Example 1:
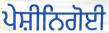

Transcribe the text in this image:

ਪੇਸ਼ੀਨਿਗੋਈ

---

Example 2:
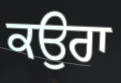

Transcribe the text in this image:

ਕਉਰਾ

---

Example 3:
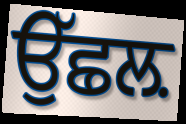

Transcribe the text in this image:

ਉੱਛਲ਼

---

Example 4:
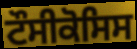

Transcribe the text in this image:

ਟੌਸੀਕੋਸਿਸ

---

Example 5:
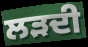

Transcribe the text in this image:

ਲੜਦੀ